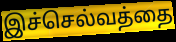
இச்செல்வத்தை